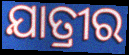
ଯାତ୍ରୀର